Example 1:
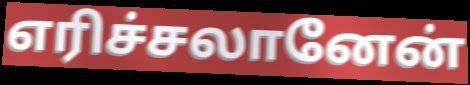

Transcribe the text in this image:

எரிச்சலானேன்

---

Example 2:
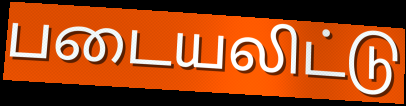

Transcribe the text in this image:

படையலிட்டு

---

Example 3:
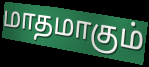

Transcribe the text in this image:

மாதமாகும்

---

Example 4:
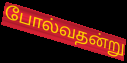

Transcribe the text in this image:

போல்வதன்று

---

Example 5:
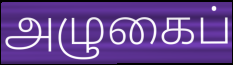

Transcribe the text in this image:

அழுகைப்